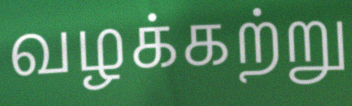
வழக்கற்று